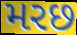
મરછ